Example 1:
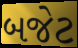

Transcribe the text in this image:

બજેટ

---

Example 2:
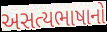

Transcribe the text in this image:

અસત્યભાષાનો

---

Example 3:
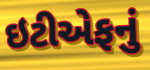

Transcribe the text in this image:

ઇટીએફનું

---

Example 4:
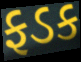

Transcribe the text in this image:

ફડક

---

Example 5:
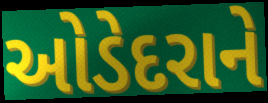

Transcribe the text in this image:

ઓડેદરાને